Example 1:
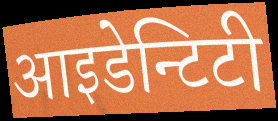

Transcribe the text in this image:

आइडेन्टिटी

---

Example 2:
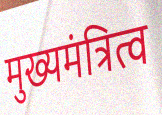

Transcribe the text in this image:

मुख्यमंत्रित्व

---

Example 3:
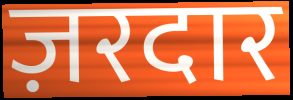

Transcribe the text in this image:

ज़रदार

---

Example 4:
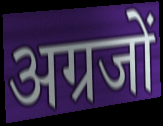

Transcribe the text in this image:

अग्रजों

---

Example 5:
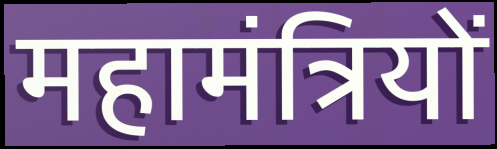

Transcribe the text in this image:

महामंत्रियों